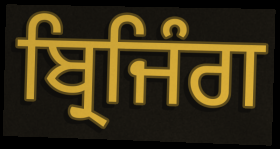
ਬ੍ਰਿਜਿੰਗ